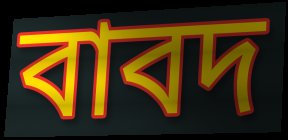
বাবদ